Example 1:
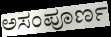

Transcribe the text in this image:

ಅಸಂಪೂರ್ಣ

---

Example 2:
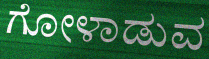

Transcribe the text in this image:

ಗೋಳಾಡುವ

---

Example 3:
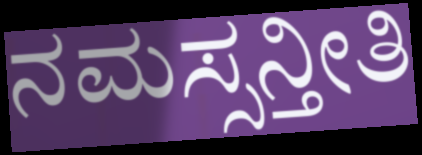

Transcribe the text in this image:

ನಮಸ್ಸನ್ತೀತಿ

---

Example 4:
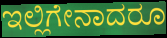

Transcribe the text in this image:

ಇಲ್ಲಿಗೇನಾದರೂ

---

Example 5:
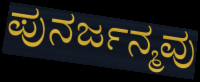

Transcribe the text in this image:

ಪುನರ್ಜನ್ಮವು